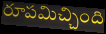
రూపమిచ్చింది